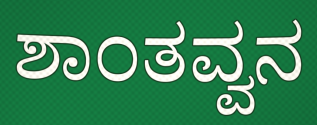
ಶಾಂತವ್ವನ